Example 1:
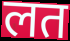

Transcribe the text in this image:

लत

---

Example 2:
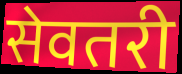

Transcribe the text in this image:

सेवतरी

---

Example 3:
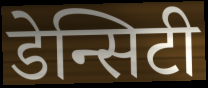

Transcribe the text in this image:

डेन्सिटी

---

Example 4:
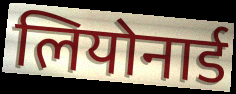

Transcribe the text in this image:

लियोनार्ड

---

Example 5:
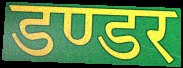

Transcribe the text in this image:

डण्डर